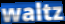
waltz